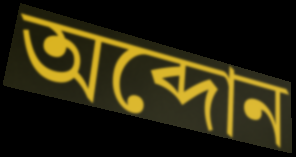
অব্দোন